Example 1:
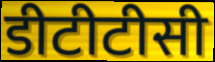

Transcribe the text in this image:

डीटीटीसी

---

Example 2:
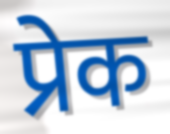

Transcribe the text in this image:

प्रेक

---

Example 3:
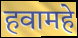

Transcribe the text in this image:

हवामहे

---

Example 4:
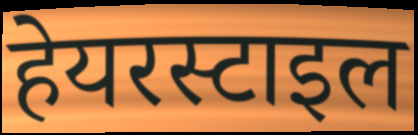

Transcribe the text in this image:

हेयरस्टाइल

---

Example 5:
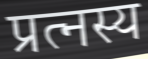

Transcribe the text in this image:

प्रत्नस्य